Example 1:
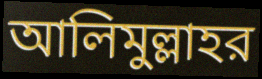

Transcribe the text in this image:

আলিমুল্লাহর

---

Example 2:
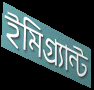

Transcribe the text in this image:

ইমিগ্র্যান্ট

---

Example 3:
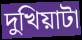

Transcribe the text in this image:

দুখিয়াটা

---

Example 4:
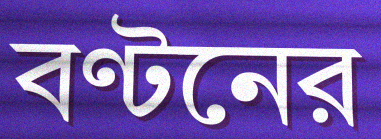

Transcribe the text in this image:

বণ্টনের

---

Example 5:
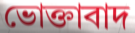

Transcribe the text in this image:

ভোক্তাবাদ